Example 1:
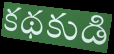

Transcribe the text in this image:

కథకుడి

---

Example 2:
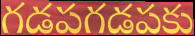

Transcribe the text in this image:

గడపగడపకు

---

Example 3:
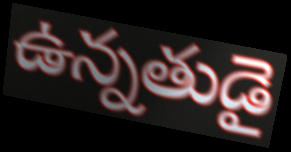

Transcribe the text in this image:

ఉన్నతుడై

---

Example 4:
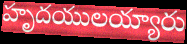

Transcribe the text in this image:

హృదయులయ్యారు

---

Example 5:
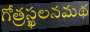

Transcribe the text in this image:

గోత్రస్ఖలనమథ